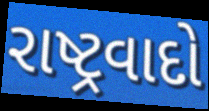
રાષ્ટ્રવાદો